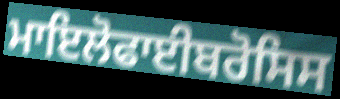
ਮਾਇਲੋਫਾਈਬਰੋਸਿਸ